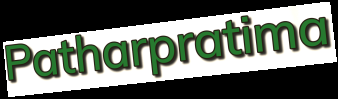
Patharpratima